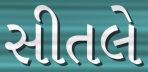
સીતલે